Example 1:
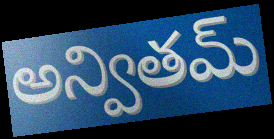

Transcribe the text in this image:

అన్వితమ్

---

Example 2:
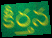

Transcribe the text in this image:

కీర్తన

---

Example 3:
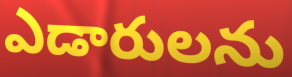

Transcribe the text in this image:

ఎడారులను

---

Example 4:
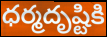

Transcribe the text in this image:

ధర్మదృష్టికి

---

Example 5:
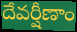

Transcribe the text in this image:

దేవర్షీణాం